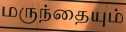
மருந்தையும்